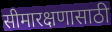
सीमारक्षणासाठी